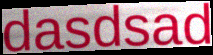
dasdsad